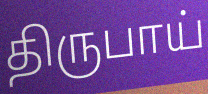
திருபாய்